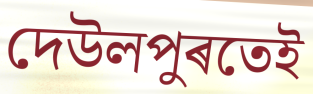
দেউলপুৰতেই